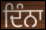
ਦਿੰਨਾ